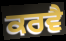
ਕਰਵੈ